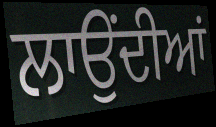
ਲਾਉੰਦੀਆਂ